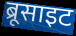
ब्रूसाइट